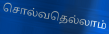
சொல்வதெல்லாம்